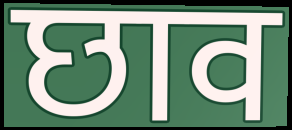
छाव